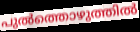
പുൽത്തൊഴുത്തിൽ